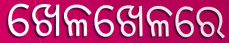
ଖେଳଖେଳରେ